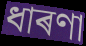
ধাৰণা